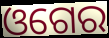
ଓଗେର